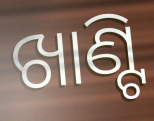
ଖାଣ୍ଟି